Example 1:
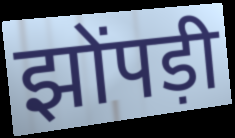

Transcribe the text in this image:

झोंपड़ी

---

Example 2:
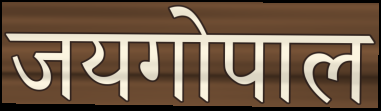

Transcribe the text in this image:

जयगोपाल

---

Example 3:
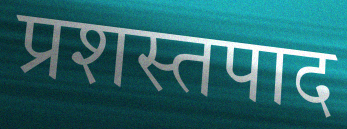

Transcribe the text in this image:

प्रशस्तपाद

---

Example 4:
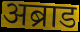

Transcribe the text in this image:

अब्राड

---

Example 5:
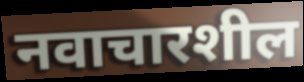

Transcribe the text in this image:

नवाचारशील